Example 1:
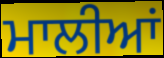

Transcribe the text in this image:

ਮਾਲੀਆਂ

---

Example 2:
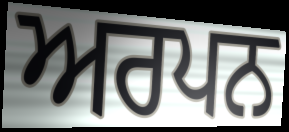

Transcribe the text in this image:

ਅਰਪਨ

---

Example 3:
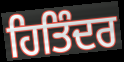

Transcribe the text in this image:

ਹਿਤਿੰਦਰ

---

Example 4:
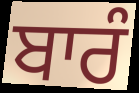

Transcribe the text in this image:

ਬਾਰੰ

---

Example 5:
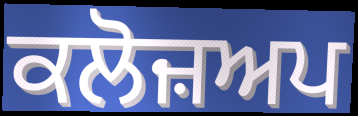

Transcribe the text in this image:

ਕਲੋਜ਼ਅਪ